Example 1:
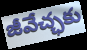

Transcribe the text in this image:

జీవేచ్ఛకు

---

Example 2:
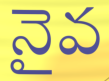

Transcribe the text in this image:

నైవ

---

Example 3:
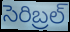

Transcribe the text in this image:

సెరిబ్రల్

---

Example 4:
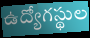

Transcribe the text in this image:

ఉద్యోగస్థుల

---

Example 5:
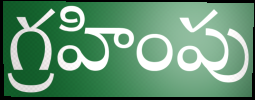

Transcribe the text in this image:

గ్రహింపు